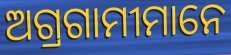
ଅଗ୍ରଗାମୀମାନେ